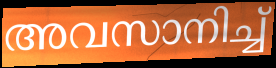
അവസാനിച്ച്